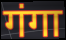
गंगा